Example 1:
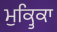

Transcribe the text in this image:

ਮੁਕ੍ਤਿਕਾ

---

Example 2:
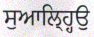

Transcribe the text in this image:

ਸੁਆਲ੍ਹ੍ਹਿਉ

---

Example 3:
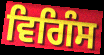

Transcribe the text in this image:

ਵਿਗਿੰਸ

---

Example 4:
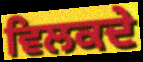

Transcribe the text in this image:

ਵਿਲਕਦੇ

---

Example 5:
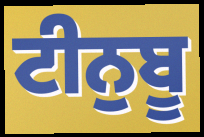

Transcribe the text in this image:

ਟੀਨੁਬੂ